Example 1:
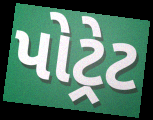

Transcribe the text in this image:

પોટ્રેટ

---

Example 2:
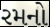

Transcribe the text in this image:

રમનો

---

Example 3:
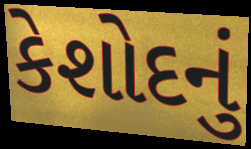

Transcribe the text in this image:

કેશોદનું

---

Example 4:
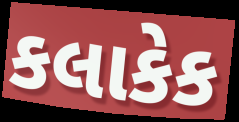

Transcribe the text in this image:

કલાકેક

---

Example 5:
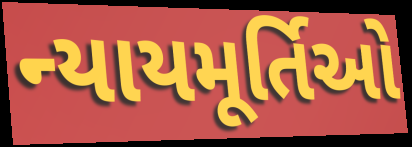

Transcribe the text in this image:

ન્યાયમૂર્તિઓ